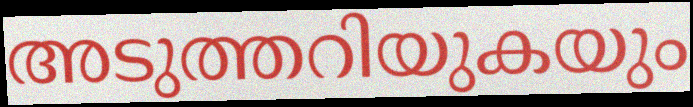
അടുത്തറിയുകയും